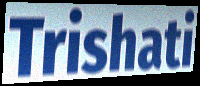
Trishati